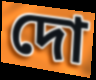
দো